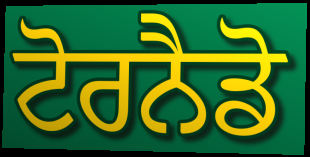
ਟੋਰਨੈਡੋ